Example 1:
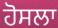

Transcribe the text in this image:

ਹੋਸਲਾ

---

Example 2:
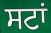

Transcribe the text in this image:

ਸਟਾਂ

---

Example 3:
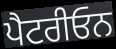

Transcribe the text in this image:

ਪੈਟਰੀਓਨ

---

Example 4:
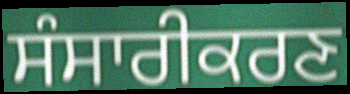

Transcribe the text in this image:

ਸੰਸਾਰੀਕਰਣ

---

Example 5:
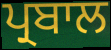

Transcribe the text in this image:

ਪ੍ਰਬਾਲ